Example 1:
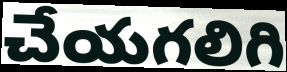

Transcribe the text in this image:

చేయగలిగి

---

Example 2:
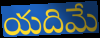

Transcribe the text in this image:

యదిమే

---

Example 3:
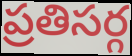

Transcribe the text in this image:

ప్రతిసర్గ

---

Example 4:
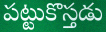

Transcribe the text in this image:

పట్టుకొస్తడు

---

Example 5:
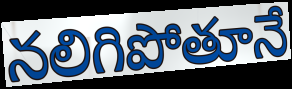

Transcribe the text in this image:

నలిగిపోతూనే